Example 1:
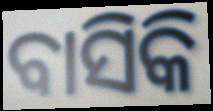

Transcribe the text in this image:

ବାସିକି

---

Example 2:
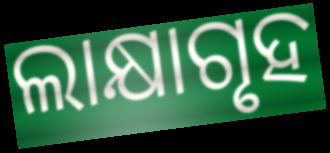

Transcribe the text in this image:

ଲାକ୍ଷାଗୃହ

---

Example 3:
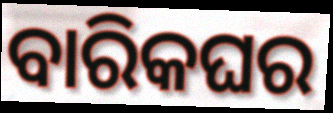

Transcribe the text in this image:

ବାରିକଘର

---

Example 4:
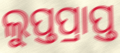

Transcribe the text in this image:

ଲୁପ୍ତପ୍ରାପ୍ତ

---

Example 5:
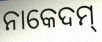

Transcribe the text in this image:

ନାକେଦମ୍